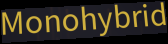
Monohybrid